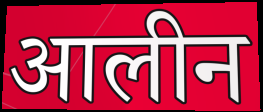
आलीन